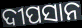
ଦୀପସାନ